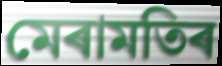
মেৰামতিৰ